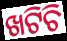
ଖଟିଚି